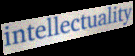
intellectuality